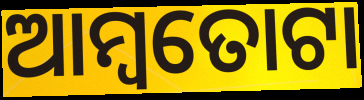
ଆମ୍ବତୋଟା